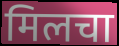
मिलचा